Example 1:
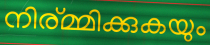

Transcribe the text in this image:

നിര്മ്മിക്കുകയും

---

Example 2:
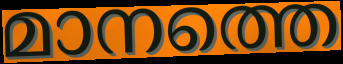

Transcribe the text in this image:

മാനത്തെ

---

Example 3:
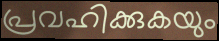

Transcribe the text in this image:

പ്രവഹിക്കുകയും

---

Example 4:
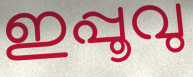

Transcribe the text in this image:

ഇപ്പൂവു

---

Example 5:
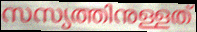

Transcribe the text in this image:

സസ്യത്തിനുള്ളത്